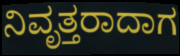
ನಿವೃತ್ತರಾದಾಗ